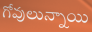
గోవులున్నాయి